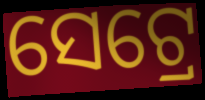
ସେଟ୍ରେ